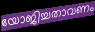
യോജിച്ചതാവണം